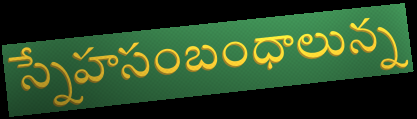
స్నేహసంబంధాలున్న